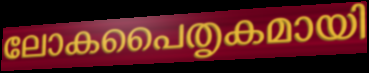
ലോകപൈതൃകമായി